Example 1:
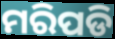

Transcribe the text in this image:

ମରିପଡି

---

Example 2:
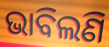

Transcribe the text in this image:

ଭାବିଲଣି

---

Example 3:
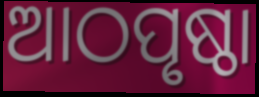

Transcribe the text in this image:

ଆଠପୃଷ୍ଠା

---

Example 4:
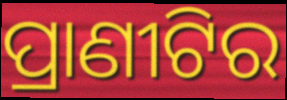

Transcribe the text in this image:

ପ୍ରାଣୀଟିର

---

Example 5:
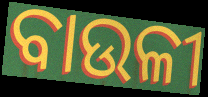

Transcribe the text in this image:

ବାଉଳୀ